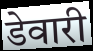
डेवारी